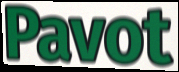
Pavot